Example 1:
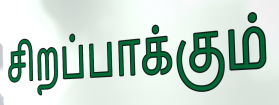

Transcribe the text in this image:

சிறப்பாக்கும்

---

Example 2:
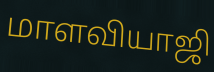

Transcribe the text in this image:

மாளவியாஜி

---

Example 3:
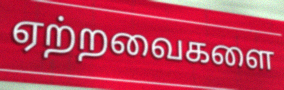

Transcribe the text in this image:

ஏற்றவைகளை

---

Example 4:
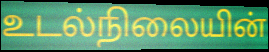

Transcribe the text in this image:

உடல்நிலையின்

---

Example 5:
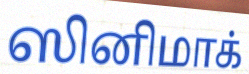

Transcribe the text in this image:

ஸினிமாக்